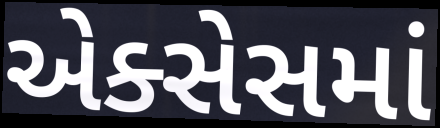
એક્સેસમાં